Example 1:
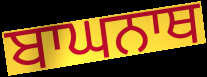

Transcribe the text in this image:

ਬਾਘਨਾਥ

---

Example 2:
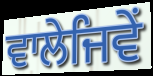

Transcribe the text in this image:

ਵਾਲੇਜਿਵੇਂ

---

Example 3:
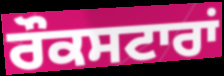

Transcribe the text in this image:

ਰੌਕਸਟਾਰਾਂ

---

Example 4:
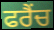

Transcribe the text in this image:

ਫਰੈਂਚ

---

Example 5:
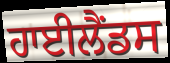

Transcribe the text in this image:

ਹਾਈਲੈਂਡਸ